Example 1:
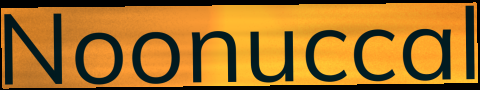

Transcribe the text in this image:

Noonuccal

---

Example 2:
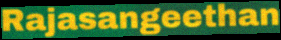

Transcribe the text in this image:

Rajasangeethan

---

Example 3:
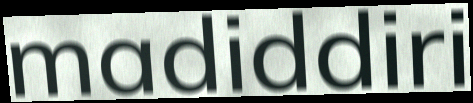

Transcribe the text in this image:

madiddiri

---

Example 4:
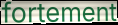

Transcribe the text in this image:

fortement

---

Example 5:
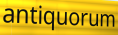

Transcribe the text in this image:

antiquorum